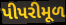
પીપરીમૂળ